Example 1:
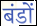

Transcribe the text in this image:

बंडों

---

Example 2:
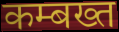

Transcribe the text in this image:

कम्बख्त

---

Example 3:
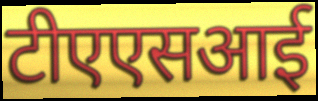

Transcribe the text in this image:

टीएएसआई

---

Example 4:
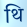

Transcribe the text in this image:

थि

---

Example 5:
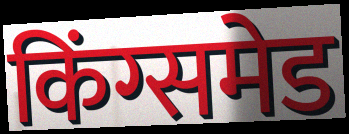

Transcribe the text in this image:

किंग्समेड